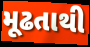
મૂઢતાથી